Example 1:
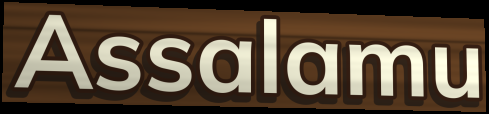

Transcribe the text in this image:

Assalamu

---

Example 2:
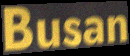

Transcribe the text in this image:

Busan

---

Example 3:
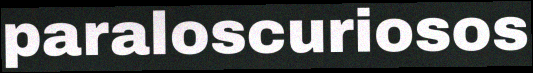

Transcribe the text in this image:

paraloscuriosos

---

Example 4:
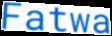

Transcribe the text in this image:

Fatwa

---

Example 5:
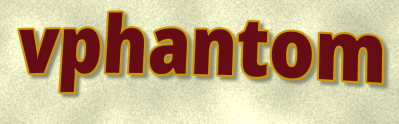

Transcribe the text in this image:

vphantom